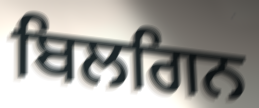
ਬਿਲਗਿਨ